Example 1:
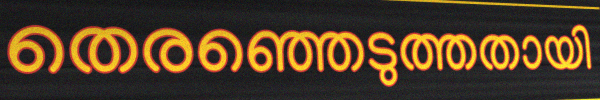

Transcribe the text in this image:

തെരഞ്ഞെടുത്തതായി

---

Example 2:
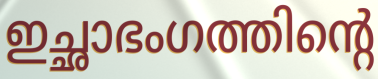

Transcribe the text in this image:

ഇച്ഛാഭംഗത്തിന്റെ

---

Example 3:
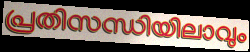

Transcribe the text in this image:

പ്രതിസന്ധിയിലാവും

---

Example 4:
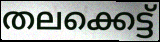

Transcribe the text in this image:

തലക്കെട്ട്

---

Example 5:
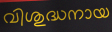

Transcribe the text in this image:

വിശുദ്ധനായ